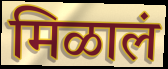
मिळालं